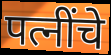
पत्नींचे